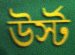
উর্স্ট